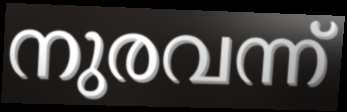
നുരവന്ന്